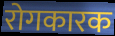
रोगकारक